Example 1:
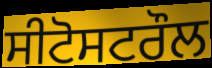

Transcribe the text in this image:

ਸੀਟੋਸਟਰੌਲ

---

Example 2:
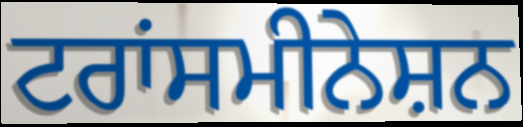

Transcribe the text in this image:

ਟਰਾਂਸਮੀਨੇਸ਼ਨ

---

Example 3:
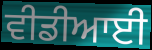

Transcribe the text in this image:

ਵੀਡੀਆਈ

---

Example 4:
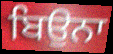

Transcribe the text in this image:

ਬਿਉਨਾ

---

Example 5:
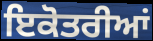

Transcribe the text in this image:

ਇਕੋਤਰੀਆਂ